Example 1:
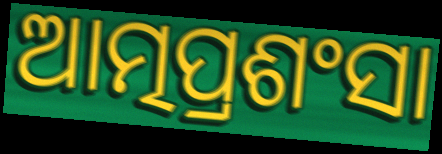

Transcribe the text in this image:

ଆତ୍ମପ୍ରଶଂସା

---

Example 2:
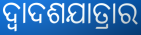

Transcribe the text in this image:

ଦ୍ୱାଦଶଯାତ୍ରାର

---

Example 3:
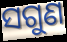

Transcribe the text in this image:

ସଗୁଣ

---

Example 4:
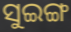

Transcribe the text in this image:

ସୁଇଙ୍ଗ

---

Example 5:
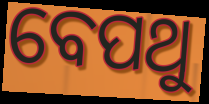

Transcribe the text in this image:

ବେପଥୁ